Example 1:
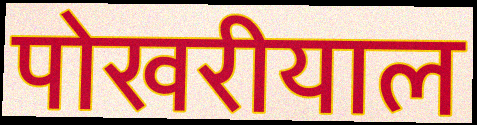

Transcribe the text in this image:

पोखरीयाल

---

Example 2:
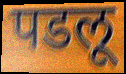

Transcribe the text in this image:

पडलू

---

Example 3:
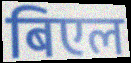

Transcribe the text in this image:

बिएल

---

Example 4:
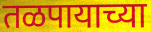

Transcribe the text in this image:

तळपायाच्या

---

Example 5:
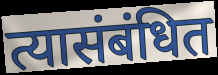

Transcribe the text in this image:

त्यासंबंधित